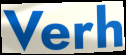
Verh